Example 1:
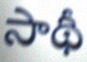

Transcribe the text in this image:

సాథీ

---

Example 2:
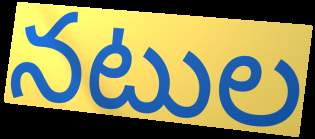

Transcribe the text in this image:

నటుల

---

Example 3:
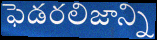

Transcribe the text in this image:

ఫెడరలిజాన్ని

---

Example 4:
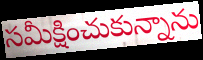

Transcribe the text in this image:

సమీక్షించుకున్నాను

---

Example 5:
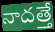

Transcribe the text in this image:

నాదత్తే